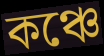
কঞ্চে